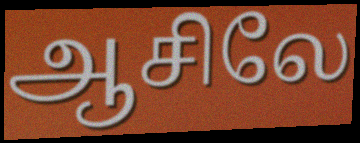
ஆசிலே